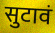
सुटावं